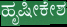
ಹೃಷೀಕೇಶ